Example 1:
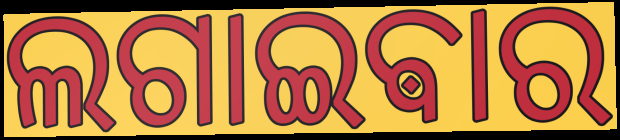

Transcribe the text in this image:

ଲଗାଇଵାର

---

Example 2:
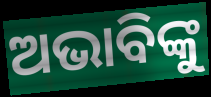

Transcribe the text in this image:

ଅଭାବିଙ୍କୁ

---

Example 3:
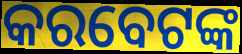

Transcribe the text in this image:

କରବେଟଙ୍କ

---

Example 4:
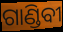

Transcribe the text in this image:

ଗାଣ୍ଡିବୀ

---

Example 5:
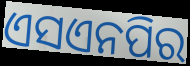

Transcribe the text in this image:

ଏସଏନପିର